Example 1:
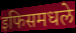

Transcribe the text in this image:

इफिसमधले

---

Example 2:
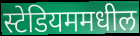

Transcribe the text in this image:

स्टेडियममधील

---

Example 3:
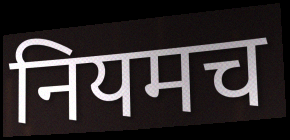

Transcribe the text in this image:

नियमच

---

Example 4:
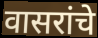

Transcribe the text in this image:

वासरांचे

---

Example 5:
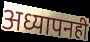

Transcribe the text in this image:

अध्यापनही